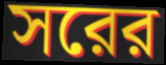
সরের